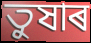
তুষাৰ